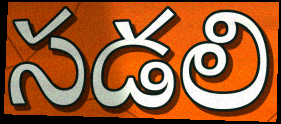
సడలి